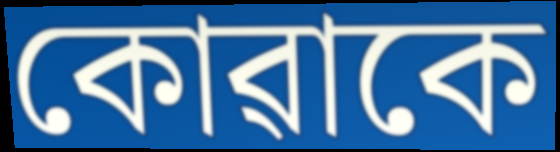
কোৱাকে